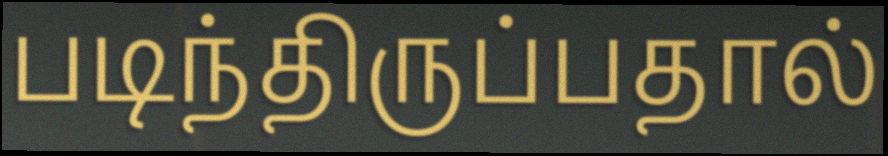
படிந்திருப்பதால்